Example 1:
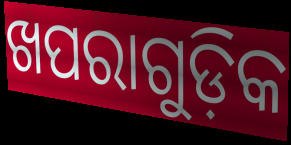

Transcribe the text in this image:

ଖପରାଗୁଡ଼ିକ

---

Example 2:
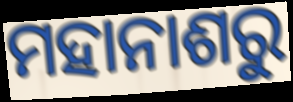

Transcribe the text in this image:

ମହାନାଶରୁ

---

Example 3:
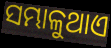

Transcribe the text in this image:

ସମ୍ଭାଳୁଥାଏ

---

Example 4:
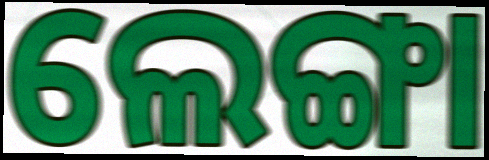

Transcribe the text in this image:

ଲେଙ୍ଗା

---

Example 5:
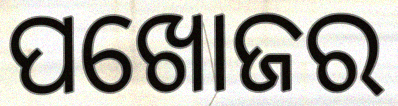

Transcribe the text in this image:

ପଖୋଜର